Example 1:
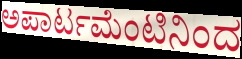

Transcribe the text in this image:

ಅಪಾರ್ಟಮೆಂಟಿನಿಂದ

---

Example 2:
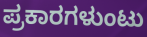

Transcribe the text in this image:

ಪ್ರಕಾರಗಳುಂಟು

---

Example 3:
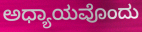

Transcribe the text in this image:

ಅಧ್ಯಾಯವೊಂದು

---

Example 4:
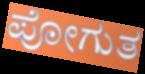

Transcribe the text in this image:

ಪೋಗುತ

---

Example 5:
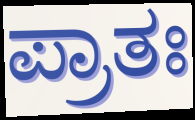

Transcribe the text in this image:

ಪ್ರಾತಃ